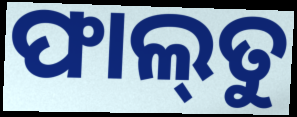
ଫାଲ୍‌ତୁ